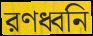
রণধ্বনি